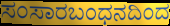
ಸಂಸಾರಬಂಧನದಿಂದ